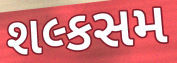
શલ્કસમ